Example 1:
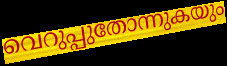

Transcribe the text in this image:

വെറുപ്പുതോന്നുകയും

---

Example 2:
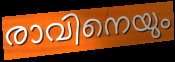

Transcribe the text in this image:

രാവിനെയും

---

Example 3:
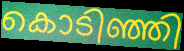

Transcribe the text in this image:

കൊടിഞ്ഞി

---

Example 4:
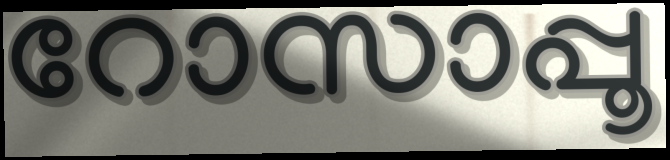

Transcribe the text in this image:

റോസാപ്പൂ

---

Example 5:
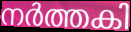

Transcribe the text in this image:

നർത്തകി